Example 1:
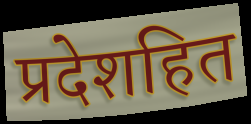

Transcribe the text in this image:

प्रदेशहित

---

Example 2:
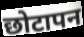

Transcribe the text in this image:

छोटापन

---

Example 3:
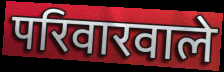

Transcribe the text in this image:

परिवारवाले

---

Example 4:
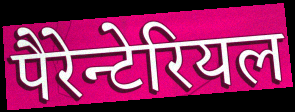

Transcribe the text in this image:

पैरेन्टेरियल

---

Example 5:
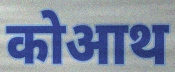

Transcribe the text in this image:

कोआथ